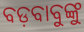
ବଡ଼ବାବୁଙ୍କୁ